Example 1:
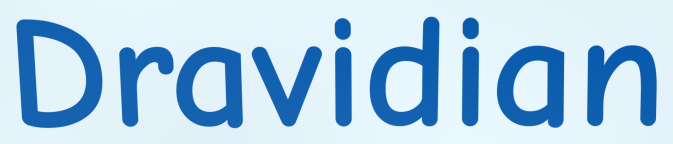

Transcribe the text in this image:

Dravidian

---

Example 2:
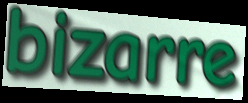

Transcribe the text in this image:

bizarre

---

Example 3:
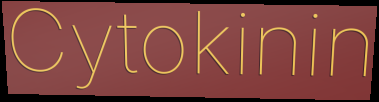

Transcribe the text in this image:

Cytokinin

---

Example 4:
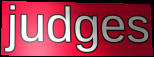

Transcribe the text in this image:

judges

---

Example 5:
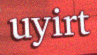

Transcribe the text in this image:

uyirt